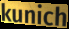
kunich